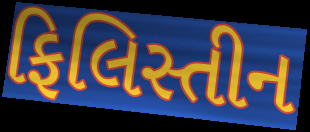
ફિલિસ્તીન